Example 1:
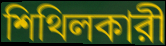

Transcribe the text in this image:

শিথিলকারী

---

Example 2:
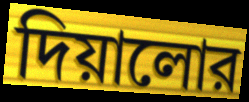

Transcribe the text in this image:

দিয়ালোর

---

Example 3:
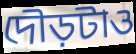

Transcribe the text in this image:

দৌড়টাও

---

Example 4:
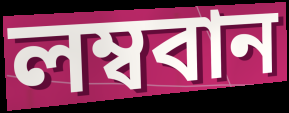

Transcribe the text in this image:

লম্ববান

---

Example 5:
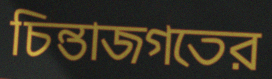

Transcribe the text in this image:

চিন্তাজগতের